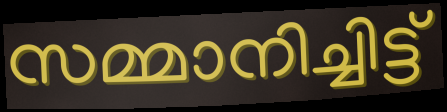
സമ്മാനിച്ചിട്ട്